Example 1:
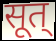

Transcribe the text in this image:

सूत्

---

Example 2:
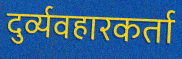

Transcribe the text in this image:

दुर्व्यवहारकर्ता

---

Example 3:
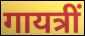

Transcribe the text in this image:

गायत्रीं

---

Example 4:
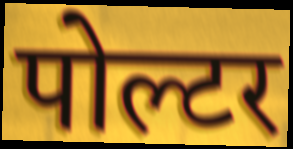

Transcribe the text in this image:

पोल्टर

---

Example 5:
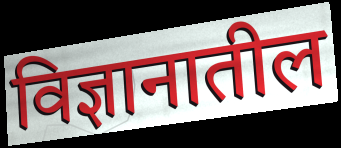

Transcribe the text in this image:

विज्ञानातील